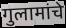
गुलामांचे